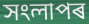
সংলাপৰ